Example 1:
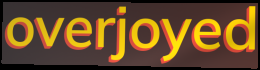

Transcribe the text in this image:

overjoyed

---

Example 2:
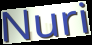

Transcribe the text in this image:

Nuri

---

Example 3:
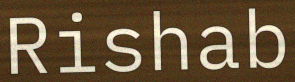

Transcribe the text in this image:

Rishab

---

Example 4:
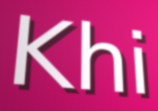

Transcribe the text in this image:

Khi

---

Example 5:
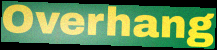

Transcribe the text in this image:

Overhang